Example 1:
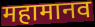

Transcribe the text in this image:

महामानव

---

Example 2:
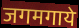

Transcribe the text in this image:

जगमगाये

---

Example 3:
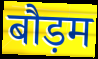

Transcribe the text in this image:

बौड़म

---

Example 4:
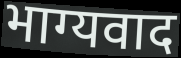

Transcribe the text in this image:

भाग्यवाद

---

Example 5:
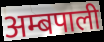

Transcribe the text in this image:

अम्बपाली